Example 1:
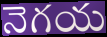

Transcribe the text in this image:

నెగయ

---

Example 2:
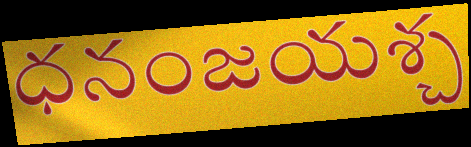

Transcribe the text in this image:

ధనంజయశ్చ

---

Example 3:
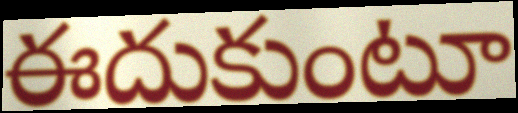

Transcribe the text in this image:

ఈదుకుంటూ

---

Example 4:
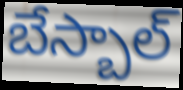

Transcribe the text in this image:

బేస్బాల్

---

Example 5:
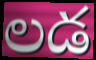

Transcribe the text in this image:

లడ